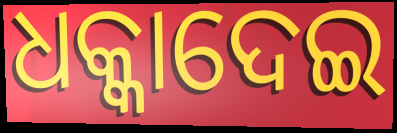
ଧକ୍କାଦେଇ